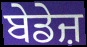
ਬੇਡੇਜ਼